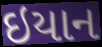
ઇયાન